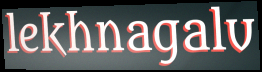
lekhnagalu